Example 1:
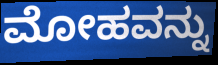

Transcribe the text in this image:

ಮೋಹವನ್ನು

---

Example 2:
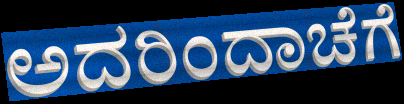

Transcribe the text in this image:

ಅದರಿಂದಾಚೆಗೆ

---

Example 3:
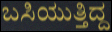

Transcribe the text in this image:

ಬಸಿಯುತ್ತಿದ್ದ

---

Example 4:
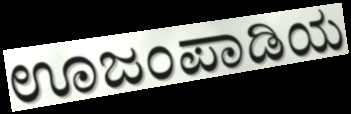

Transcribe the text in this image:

ಊಜಂಪಾಡಿಯ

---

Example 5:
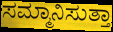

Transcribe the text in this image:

ಸಮ್ಮಾನಿಸುತ್ತಾ